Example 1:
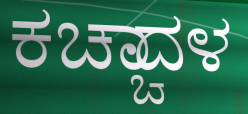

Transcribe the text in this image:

ಕಚ್ಚಾದಳ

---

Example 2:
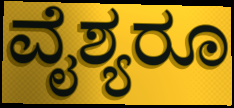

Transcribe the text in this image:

ವೈಶ್ಯರೂ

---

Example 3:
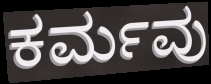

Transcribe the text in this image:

ಕರ್ಮವು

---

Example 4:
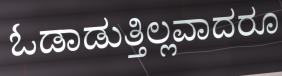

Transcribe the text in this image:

ಓಡಾಡುತ್ತಿಲ್ಲವಾದರೂ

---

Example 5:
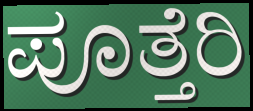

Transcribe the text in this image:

ಪೂತ್ತೆರಿ